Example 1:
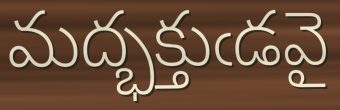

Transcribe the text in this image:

మద్భక్తుఁడవై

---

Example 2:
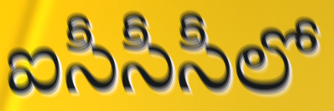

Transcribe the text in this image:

ఐసీసీసీలో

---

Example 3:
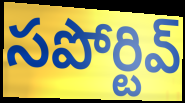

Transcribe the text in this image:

సపోర్టివ్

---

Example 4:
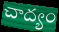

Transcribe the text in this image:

చాద్యం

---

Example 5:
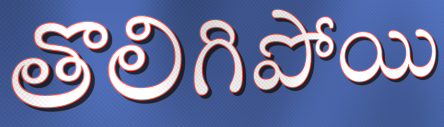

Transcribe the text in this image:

తొలిగిపోయి